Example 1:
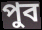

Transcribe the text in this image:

পুব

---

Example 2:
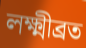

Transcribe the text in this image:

লক্ষ্মীব্রত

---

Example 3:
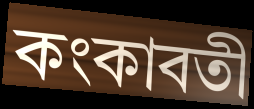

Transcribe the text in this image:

কংকাবতী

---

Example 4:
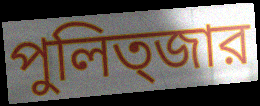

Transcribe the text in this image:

পুলিত্জার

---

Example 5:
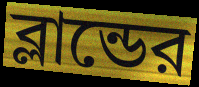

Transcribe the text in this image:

ব্লান্ডের